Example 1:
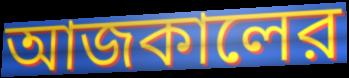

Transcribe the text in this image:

আজকালের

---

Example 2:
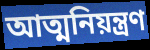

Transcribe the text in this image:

আত্মনিয়ন্ত্রণ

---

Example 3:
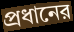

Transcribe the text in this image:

প্রধানের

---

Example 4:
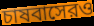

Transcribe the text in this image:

চাষবাসেরও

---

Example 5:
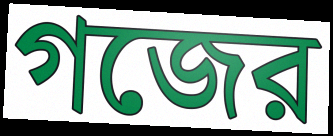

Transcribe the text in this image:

গজের